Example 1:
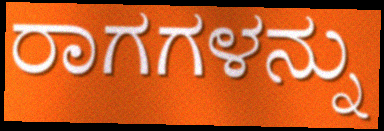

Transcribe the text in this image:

ರಾಗಗಳನ್ನು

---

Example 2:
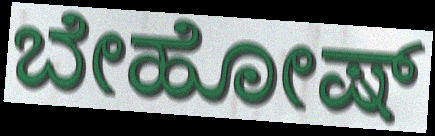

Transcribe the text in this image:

ಬೇಹೋಷ್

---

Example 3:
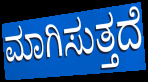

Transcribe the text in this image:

ಮಾಗಿಸುತ್ತದೆ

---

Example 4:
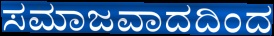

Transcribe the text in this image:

ಸಮಾಜವಾದದಿಂದ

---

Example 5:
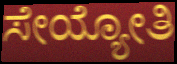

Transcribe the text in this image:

ಸೇಯ್ಯೋತಿ